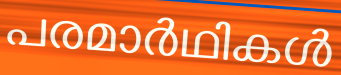
പരമാർഥികൾ